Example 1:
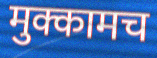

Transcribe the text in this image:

मुक्कामच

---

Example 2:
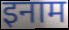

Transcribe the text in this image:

इनाम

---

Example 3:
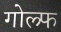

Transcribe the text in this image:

गोल्फ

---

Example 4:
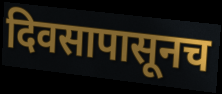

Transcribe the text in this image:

दिवसापासूनच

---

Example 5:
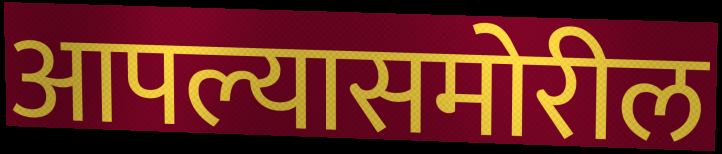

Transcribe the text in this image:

आपल्यासमोरील